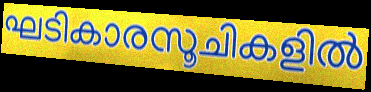
ഘടികാരസൂചികളിൽ